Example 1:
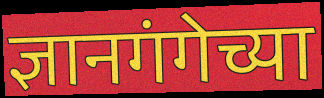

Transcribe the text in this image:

ज्ञानगंगेच्या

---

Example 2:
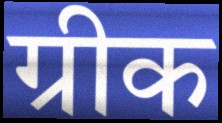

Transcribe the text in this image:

ग्रीक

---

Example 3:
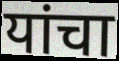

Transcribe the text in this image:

यांचा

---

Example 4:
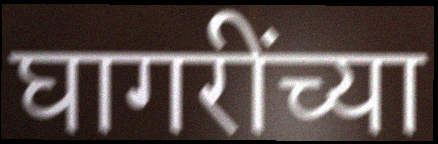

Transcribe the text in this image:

घागरींच्या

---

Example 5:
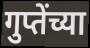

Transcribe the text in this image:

गुप्तेंच्या